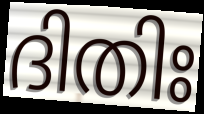
ദിതിഃ